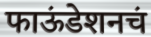
फाऊंडेशनचं